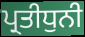
ਪ੍ਰਤੀਧੁਨੀ